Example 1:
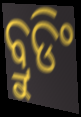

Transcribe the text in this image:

ବ୍ରୁଡିଂ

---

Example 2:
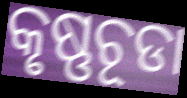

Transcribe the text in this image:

କୃଷ୍ଣଚୂଡା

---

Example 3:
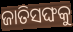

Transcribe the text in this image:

ଜାତିସଙ୍ଘକୁ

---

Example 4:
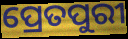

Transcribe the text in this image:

ପ୍ରେତପୁରୀ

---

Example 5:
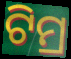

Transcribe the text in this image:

ଟିମ୍ର